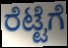
ರೆಟ್ಟೆಗೆ